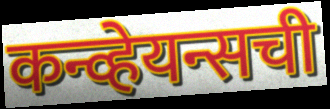
कन्व्हेयन्सची